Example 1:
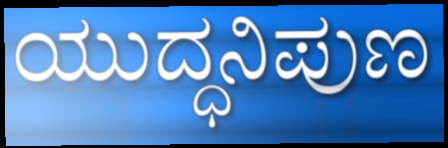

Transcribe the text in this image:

ಯುದ್ಧನಿಪುಣ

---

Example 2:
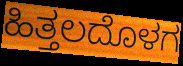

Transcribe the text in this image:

ಹಿತ್ತಲದೊಳಗ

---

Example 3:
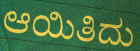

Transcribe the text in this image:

ಆಯಿತಿದು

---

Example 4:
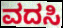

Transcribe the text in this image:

ವದಸಿ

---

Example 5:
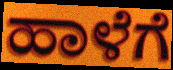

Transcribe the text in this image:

ಹಾಳೆಗೆ